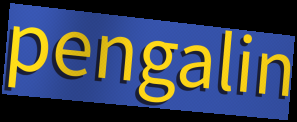
pengalin